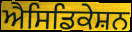
ਐਸਿਡਿਕੇਸ਼ਨ